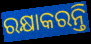
ରକ୍ଷାକରନ୍ତି